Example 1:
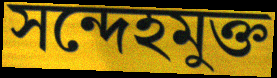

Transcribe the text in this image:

সন্দেহমুক্ত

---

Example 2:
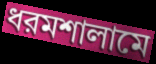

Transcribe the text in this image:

ধরমশালামে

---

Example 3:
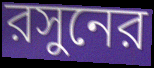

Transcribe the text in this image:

রসুনের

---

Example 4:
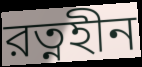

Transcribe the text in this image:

রত্নহীন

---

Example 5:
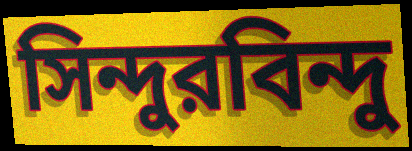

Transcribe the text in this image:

সিন্দুরবিন্দু